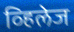
व्हिलेज